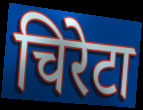
चिरेटा